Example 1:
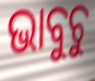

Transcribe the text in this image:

ଭାବୁଚୁ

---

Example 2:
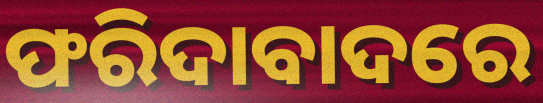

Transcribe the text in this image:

ଫରିଦାବାଦରେ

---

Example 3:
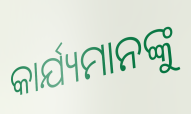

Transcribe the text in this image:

କାର୍ଯ୍ୟମାନଙ୍କୁ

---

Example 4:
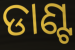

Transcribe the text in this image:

ଡାଣ୍ଟ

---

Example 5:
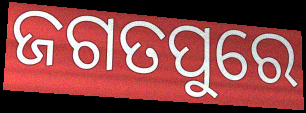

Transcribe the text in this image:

ଜଗତପୁରେ